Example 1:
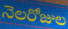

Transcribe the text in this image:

నెలరోజుల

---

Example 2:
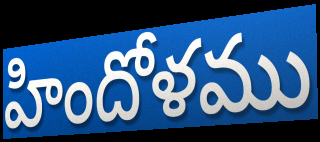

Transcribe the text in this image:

హిందోళము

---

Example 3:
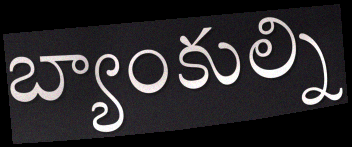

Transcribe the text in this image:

బ్యాంకుల్ని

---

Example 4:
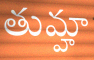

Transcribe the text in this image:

తుమ్హా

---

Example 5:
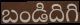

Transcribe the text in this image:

బండిదిగి